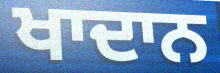
ਖਾਦਾਨ